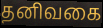
தனிவகை